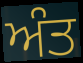
ਅੰਤ